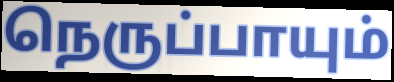
நெருப்பாயும்